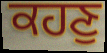
ਕਹਣੁ